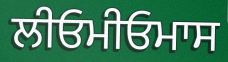
ਲੀਓਮੀਓਮਾਸ